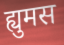
ह्युमस